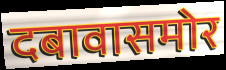
दबावासमोर